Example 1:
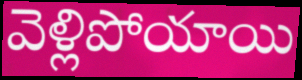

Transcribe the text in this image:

వెళ్లిపోయాయి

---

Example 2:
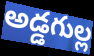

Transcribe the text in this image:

అడ్డగుల్ల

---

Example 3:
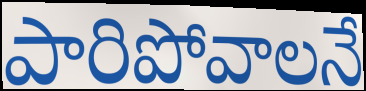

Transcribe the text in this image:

పారిపోవాలనే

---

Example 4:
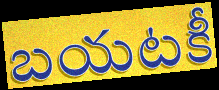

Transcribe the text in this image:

బయటకీ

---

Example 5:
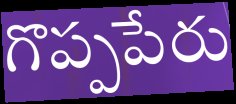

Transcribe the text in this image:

గొప్పపేరు